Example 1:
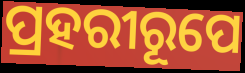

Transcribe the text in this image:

ପ୍ରହରୀରୂପେ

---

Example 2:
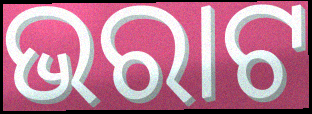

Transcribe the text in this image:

ଭରାଟ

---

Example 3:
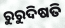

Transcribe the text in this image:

ରୁରୁଦିଷତି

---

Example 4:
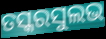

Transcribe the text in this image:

ତସ୍କରସୁଲଭ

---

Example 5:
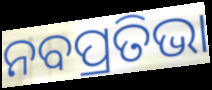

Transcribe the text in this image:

ନବପ୍ରତିଭା